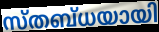
സ്തബ്ധയായി